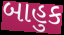
બાહુક